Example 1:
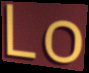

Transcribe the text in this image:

Lo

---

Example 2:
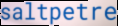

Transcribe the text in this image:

saltpetre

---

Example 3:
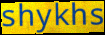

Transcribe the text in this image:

shykhs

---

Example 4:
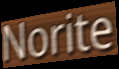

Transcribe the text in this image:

Norite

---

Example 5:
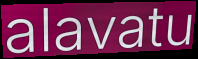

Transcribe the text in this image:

alavatu